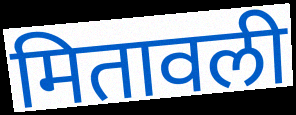
मितावली